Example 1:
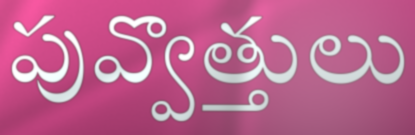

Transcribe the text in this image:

పువ్వొత్తులు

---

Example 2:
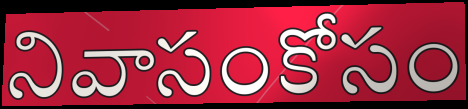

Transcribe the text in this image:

నివాసంకోసం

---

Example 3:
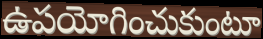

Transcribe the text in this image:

ఉపయోగించుకుంటూ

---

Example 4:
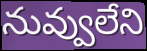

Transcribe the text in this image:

నువ్వులేని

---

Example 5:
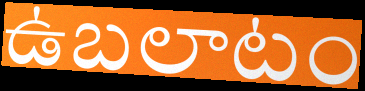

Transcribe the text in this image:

ఉబలాటం